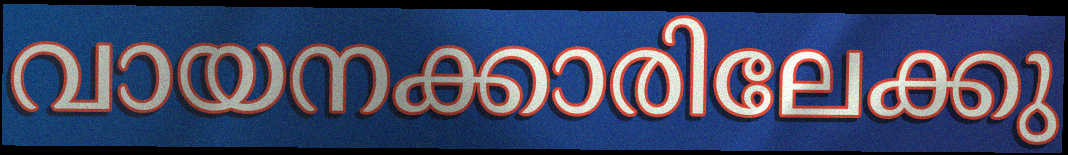
വായനക്കാരിലേക്കു